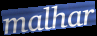
malhar